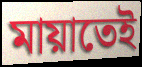
মায়াতেই